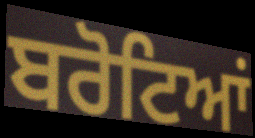
ਬਰੋਟਿਆਂ